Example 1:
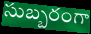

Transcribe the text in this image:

సుబ్బరంగా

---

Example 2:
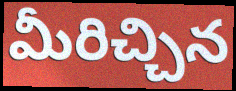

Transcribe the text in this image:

మీరిచ్చిన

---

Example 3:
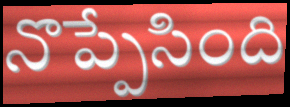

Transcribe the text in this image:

నొప్పేసింది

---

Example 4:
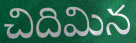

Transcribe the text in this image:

చిదిమిన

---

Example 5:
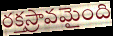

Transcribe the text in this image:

రక్తస్రావమైంది